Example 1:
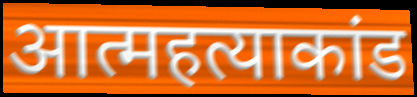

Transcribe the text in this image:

आत्महत्याकांड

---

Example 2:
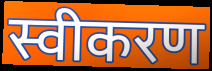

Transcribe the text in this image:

स्वीकरण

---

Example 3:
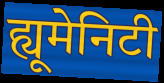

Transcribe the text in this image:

ह्यूमेनिटी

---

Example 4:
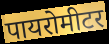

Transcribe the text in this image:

पायरोमीटर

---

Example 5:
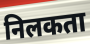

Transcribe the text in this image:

निलकता